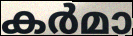
കർമാ